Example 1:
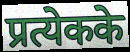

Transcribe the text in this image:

प्रत्येकके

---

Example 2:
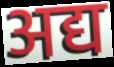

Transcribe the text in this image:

अद्य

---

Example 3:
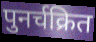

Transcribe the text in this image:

पुनर्चक्रित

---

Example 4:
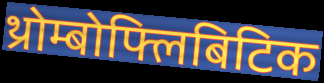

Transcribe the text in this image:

थ्रोम्बोफ्लिबिटिक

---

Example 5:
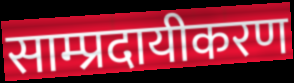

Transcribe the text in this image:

साम्प्रदायीकरण